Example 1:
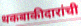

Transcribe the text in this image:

थकबाकीदारांची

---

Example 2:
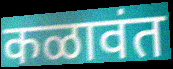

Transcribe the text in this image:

कळावंत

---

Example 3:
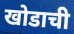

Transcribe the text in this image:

खोडाची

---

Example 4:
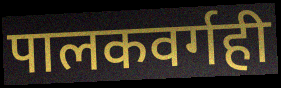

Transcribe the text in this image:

पालकवर्गही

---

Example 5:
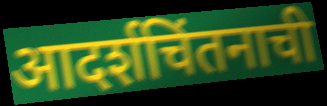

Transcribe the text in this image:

आदर्शचिंतनाची